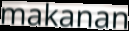
makanan